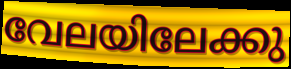
വേലയിലേക്കു